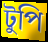
টুপি